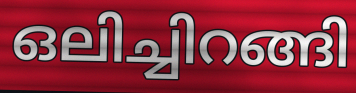
ഒലിച്ചിറങ്ങി